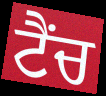
ਟੈਂਚ